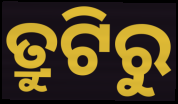
ତ୍ରୁଟିରୁ